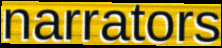
narrators